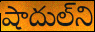
షాదుల్‌ని